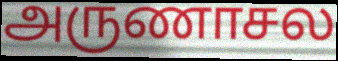
அருணாசல